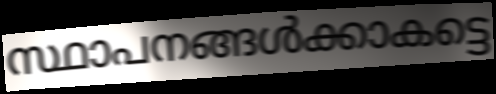
സ്ഥാപനങ്ങൾക്കാകട്ടെ